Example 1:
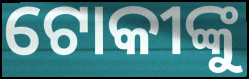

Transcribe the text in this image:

ଟୋକୀଙ୍କୁ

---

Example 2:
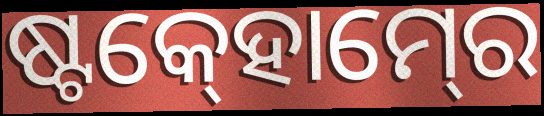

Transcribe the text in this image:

ଷ୍ଟକ୍‍ହୋମ୍‍ରେ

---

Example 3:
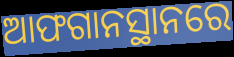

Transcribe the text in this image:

ଆଫଗାନସ୍ଥାନରେ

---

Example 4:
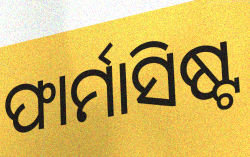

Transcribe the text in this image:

ଫାର୍ମାସିଷ୍ଟ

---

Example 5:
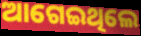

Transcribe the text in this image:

ଆଗେଇଥିଲେ